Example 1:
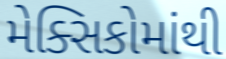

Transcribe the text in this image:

મેક્સિકોમાંથી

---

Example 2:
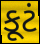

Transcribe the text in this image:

કૂટં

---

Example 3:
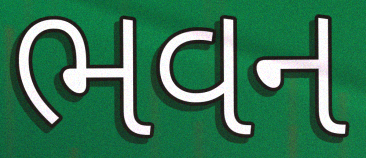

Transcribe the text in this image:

ભવન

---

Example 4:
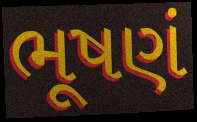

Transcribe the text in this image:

ભૂષણં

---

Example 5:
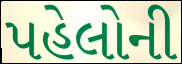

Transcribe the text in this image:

પહેલોની